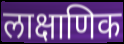
लाक्षाणिक